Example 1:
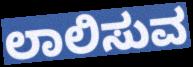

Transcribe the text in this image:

ಲಾಲಿಸುವ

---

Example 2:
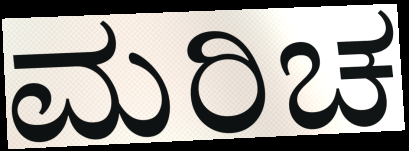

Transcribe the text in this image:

ಮರಿಚ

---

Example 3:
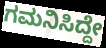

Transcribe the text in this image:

ಗಮನಿಸಿದ್ದೇ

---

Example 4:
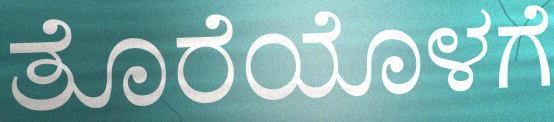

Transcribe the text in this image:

ತೊರೆಯೊಳಗೆ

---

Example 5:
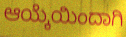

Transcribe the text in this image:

ಆಯ್ಕೆಯಿಂದಾಗಿ